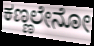
ಕಣ್ಣಲೇನೋ